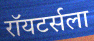
रॉयटर्सला